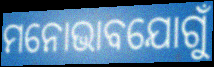
ମନୋଭାବଯୋଗୁଁ